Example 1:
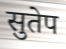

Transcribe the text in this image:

सुतेप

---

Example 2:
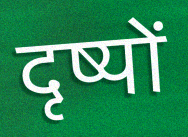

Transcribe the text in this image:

दृष्यों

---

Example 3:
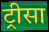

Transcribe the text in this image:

ट्रीसा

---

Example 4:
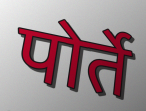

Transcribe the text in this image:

पोर्ते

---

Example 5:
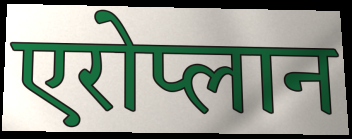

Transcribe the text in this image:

एरोप्लान